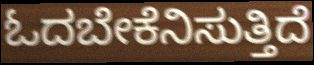
ಓದಬೇಕೆನಿಸುತ್ತಿದೆ